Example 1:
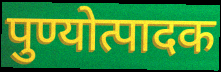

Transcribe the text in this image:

पुण्योत्पादक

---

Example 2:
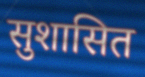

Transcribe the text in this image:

सुशासित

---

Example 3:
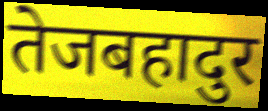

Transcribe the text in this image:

तेजबहादुर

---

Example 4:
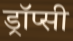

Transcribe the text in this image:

ड्रॉप्सी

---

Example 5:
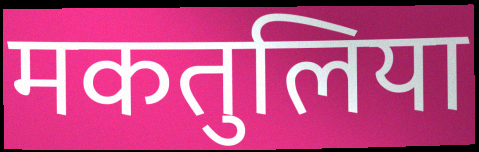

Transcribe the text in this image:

मकतुलिया